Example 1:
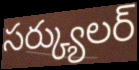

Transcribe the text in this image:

సర్క్యులర్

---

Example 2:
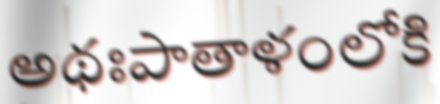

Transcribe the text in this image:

అథఃపాతాళంలోకి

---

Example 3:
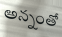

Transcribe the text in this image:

అన్నంతో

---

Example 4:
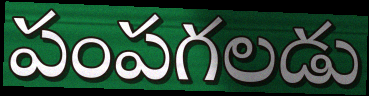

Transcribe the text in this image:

పంపగలడు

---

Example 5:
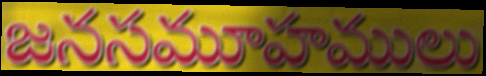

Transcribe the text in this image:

జనసమూహములు